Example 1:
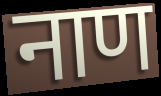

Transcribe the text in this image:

नाण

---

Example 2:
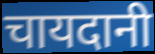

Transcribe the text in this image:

चायदानी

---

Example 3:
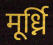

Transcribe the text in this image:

मूर्ध्नि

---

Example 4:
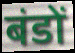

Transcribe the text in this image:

बंडों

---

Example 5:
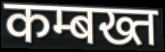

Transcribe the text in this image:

कम्बख्त